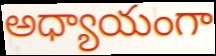
అధ్యాయంగా